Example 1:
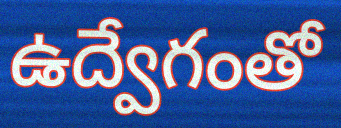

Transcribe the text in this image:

ఉద్వేగంతో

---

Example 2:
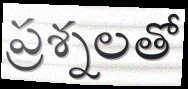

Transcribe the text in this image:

ప్రశ్నలతో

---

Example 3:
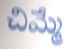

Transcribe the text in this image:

చిమ్మే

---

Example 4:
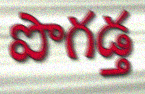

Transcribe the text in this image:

పొగడ్త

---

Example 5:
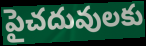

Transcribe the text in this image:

పైచదువులకు